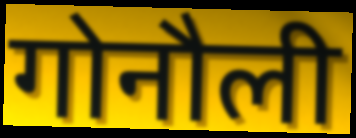
गोनौली